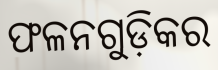
ଫଳନଗୁଡ଼ିକର